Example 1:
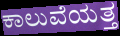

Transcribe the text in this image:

ಕಾಲುವೆಯತ್ತ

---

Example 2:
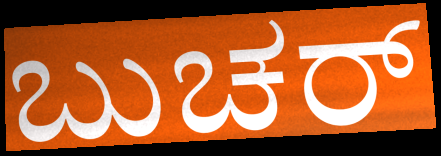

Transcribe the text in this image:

ಬುಚರ್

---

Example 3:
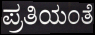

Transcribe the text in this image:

ಪ್ರತಿಯಂತೆ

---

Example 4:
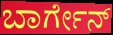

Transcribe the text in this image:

ಬಾರ್ಗೇನ್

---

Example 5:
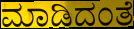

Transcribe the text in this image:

ಮಾಡಿದಂತೆ